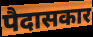
पैदासकार